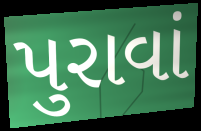
પુરાવાં